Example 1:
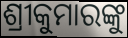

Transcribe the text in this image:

ଶ୍ରୀକୁମାରଙ୍କୁ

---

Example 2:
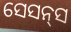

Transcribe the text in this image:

ସେସନ୍‌ସ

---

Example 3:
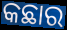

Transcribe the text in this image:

କଛାର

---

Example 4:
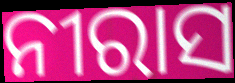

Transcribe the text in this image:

ନୀରାସ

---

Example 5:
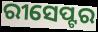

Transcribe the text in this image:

ରୀସେପ୍ଟର